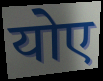
योए